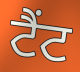
ਟੈਂਟ